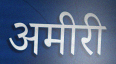
अमीरी